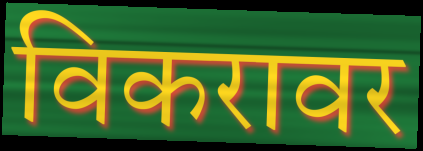
विकरावर